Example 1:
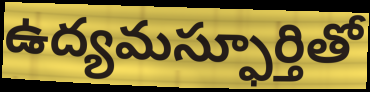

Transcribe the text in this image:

ఉద్యమస్ఫూర్తితో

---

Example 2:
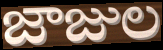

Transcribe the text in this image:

జాజుల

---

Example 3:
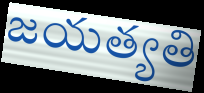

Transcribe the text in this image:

జయత్యతి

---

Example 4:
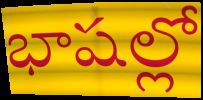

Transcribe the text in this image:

భాషల్లో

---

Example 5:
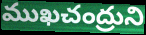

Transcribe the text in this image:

ముఖచంద్రుని